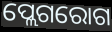
ପ୍ଲେଗରୋଗ